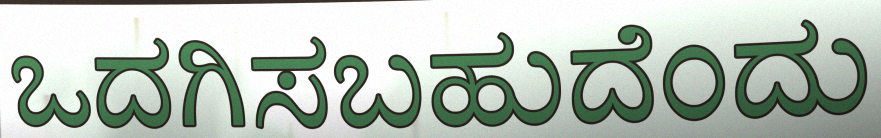
ಒದಗಿಸಬಹುದೆಂದು